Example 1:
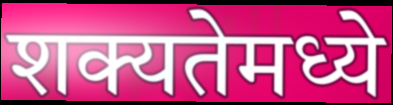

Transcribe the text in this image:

शक्यतेमध्ये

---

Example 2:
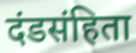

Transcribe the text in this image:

दंडसंहिता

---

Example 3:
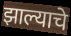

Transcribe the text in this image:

झाल्याचे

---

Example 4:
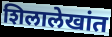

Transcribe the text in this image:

शिलालेखांत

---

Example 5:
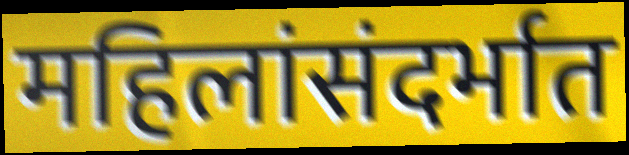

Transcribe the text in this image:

महिलांसंदर्भात